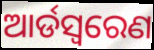
ଆର୍ଡସ୍ଵରେଣ